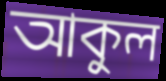
আকুল